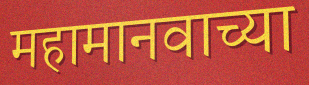
महामानवाच्या